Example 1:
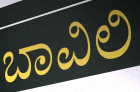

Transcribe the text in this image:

ಬಾವಿಲಿ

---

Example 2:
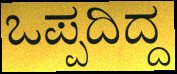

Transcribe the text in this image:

ಒಪ್ಪದಿದ್ದ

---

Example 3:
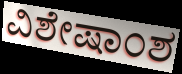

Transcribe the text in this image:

ವಿಶೇಷಾಂಶ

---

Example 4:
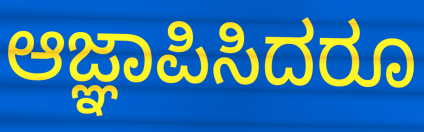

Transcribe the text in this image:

ಆಜ್ಞಾಪಿಸಿದರೂ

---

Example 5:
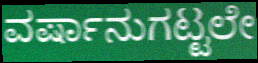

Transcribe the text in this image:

ವರ್ಷಾನುಗಟ್ಟಲೇ